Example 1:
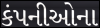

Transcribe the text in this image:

કંપનીઓના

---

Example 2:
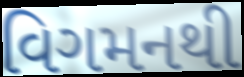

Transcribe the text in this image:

વિગમનથી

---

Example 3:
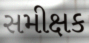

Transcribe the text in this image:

સમીક્ષક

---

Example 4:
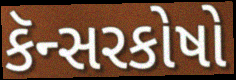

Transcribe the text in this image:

કૅન્સરકોષો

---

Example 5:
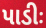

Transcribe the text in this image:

પાડીઃ